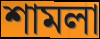
শামলা